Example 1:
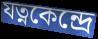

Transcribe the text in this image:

যত্নকেন্দ্রে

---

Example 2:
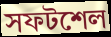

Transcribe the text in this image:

সফটশেল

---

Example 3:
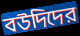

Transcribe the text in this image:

বউদিদের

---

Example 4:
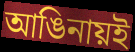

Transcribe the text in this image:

আঙিনায়ই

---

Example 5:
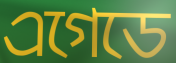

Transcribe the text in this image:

এগেডে